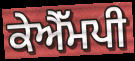
ਕੇਐੱਮਪੀ